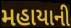
મહાયાની